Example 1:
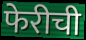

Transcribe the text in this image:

फेरीची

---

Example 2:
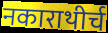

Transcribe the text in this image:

नकाराथीर्च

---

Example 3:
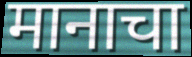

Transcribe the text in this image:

मानाचा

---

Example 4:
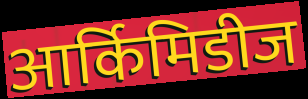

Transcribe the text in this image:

आर्किमिडीज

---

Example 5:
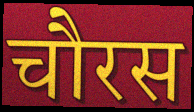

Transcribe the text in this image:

चौरस